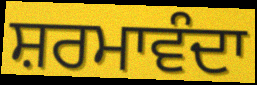
ਸ਼ਰਮਾਵੰਦਾ